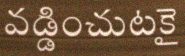
వడ్డించుటకై